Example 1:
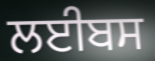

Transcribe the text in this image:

ਲਈਬਸ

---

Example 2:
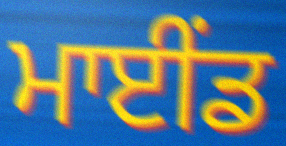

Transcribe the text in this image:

ਮਾਈਂਡ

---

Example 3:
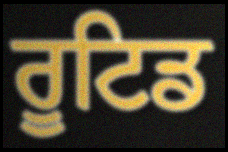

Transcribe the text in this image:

ਰੂਟਿਡ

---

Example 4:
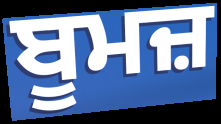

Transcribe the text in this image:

ਬੂਮਜ਼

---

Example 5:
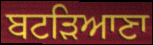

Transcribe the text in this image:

ਬਟੜਿਆਣਾ